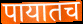
पायातच